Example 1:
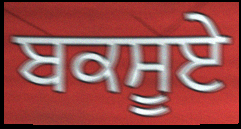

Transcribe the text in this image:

ਬਕਸੂਏ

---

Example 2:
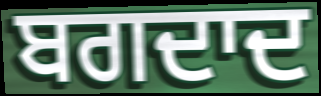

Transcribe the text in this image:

ਬਗਦਾਦ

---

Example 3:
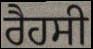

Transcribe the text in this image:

ਰੈਹਸੀ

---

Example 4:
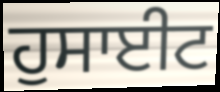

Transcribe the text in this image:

ਹੁਸਾਈਟ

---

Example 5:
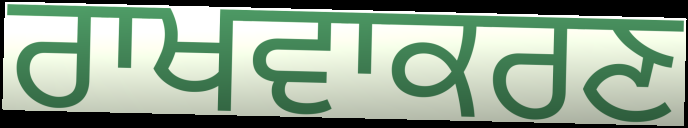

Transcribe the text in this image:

ਰਾਖਵਾਕਰਣ